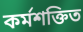
কৰ্মশক্তিত